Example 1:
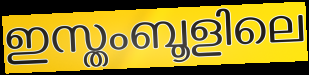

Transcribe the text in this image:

ഇസ്തംബൂളിലെ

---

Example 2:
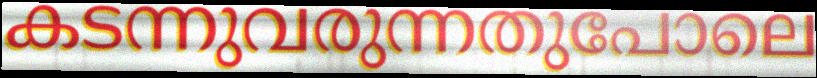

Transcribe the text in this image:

കടന്നുവരുന്നതുപോലെ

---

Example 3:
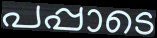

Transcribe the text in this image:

പപ്പാടെ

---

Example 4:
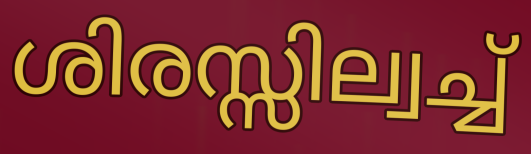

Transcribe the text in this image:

ശിരസ്സില്വച്ച്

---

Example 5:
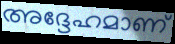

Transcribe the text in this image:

അദ്ദേഹമാണ്